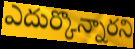
ఎదుర్కొన్నారని